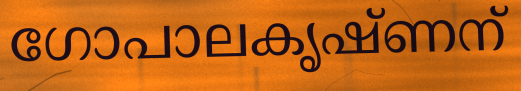
ഗോപാലകൃഷ്ണന്